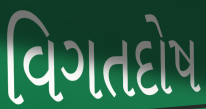
વિગતદોષ